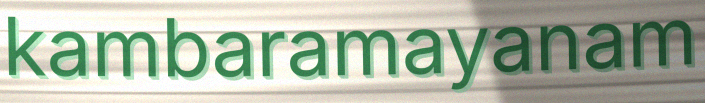
kambaramayanam